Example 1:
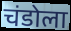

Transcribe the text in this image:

चंडोला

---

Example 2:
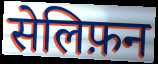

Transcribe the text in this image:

सेलिफ़न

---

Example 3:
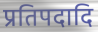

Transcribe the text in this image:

प्रतिपदादि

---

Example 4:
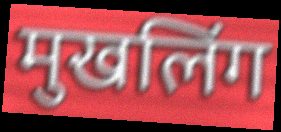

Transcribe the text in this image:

मुखलिंग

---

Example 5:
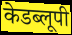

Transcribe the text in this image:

केडब्लूपी